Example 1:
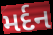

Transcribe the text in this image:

મર્દન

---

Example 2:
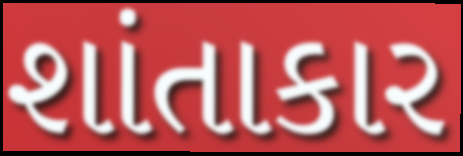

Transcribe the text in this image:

શાંતાકાર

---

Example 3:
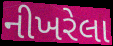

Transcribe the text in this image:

નીખરેલા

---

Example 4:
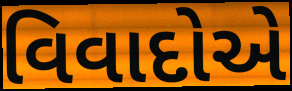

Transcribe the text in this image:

વિવાદોએ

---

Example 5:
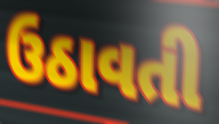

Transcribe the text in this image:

ઉઠાવતી